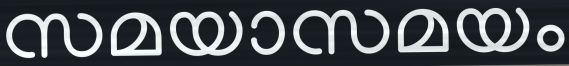
സമയാസമയം